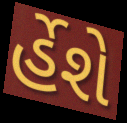
ર્હેશે